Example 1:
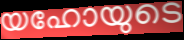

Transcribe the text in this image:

യഹോയുടെ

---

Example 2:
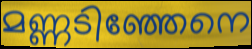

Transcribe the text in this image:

മണ്ണടിഞ്ഞേനെ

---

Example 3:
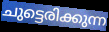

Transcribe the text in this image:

ചുട്ടെരിക്കുന്ന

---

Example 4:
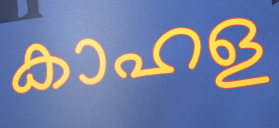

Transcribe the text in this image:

കാഹള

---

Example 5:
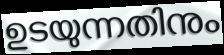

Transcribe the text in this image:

ഉടയുന്നതിനും